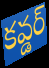
కవ్డర్